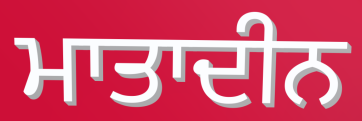
ਮਾਤਾਦੀਨ